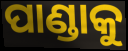
ପାଣ୍ଡାକୁ